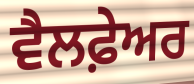
ਵੈਲਫ਼ੇਅਰ